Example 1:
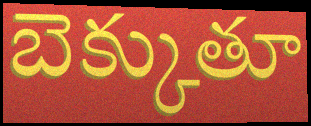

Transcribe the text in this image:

బెక్కుతూ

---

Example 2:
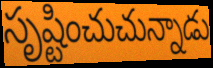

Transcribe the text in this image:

సృష్టించుచున్నాడు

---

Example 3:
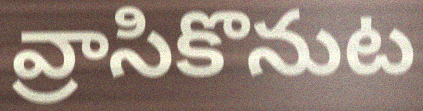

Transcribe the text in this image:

వ్రాసికొనుట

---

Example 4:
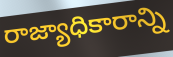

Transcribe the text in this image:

రాజ్యాధికారాన్ని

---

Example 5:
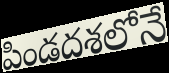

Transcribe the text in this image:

పిండదశలోనే